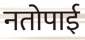
नतोपाई